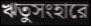
ঋতুসংহারে